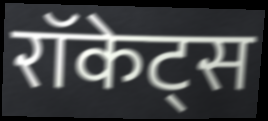
रॉकेट्स